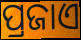
ପ୍ରଜାଏ